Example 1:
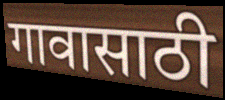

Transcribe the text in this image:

गावासाठी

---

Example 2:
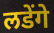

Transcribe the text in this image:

लडेंगे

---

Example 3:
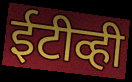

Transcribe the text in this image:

ईटीव्ही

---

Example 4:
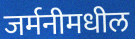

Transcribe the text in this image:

जर्मनीमधील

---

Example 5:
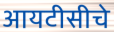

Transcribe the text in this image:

आयटीसीचे